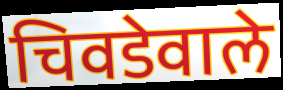
चिवडेवाले